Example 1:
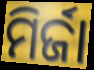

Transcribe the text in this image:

ମିର୍ଜା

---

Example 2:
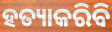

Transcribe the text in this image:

ହତ୍ୟାକରିବି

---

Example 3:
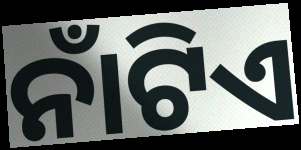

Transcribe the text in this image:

ନାଁଟିଏ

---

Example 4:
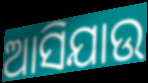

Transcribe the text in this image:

ଆସିଯାଉ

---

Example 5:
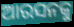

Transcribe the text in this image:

ଆରସନକୁ